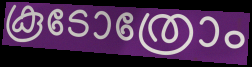
കൂടോത്രോം